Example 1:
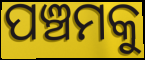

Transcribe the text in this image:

ପଞ୍ଚମକୁ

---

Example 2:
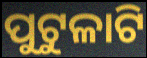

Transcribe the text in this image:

ପୁଟୁଳାଟି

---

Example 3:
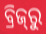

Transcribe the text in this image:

ବ୍ରିଜ୍‌ରୁ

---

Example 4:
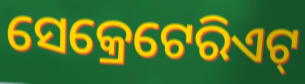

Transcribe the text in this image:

ସେକ୍ରେଟେରିଏଟ୍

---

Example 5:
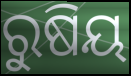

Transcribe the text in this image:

ରୁଷିୟ